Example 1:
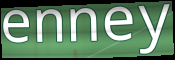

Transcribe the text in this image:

enney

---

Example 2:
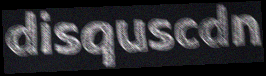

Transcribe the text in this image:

disquscdn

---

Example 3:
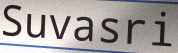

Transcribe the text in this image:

Suvasri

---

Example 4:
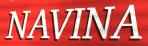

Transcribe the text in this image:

NAVINA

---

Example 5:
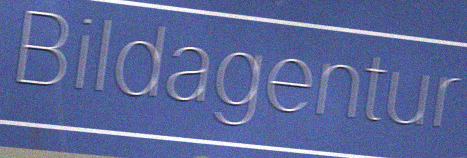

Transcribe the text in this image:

Bildagentur